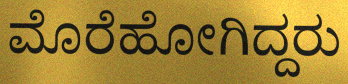
ಮೊರೆಹೋಗಿದ್ದರು